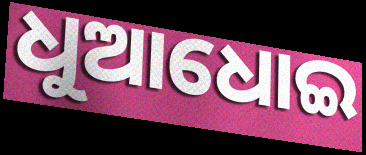
ଧୁଆଧୋଇ